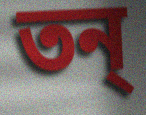
তন্